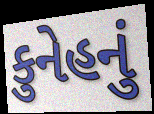
કુનેહનું